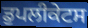
ਡੁਪਲੀਕੇਟਸ